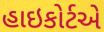
હાઇકોર્ટએ